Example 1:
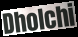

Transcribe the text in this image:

Dholchi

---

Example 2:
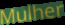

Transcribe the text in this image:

Mulher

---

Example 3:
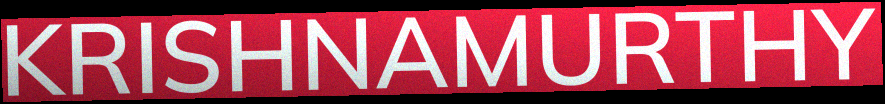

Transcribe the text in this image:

KRISHNAMURTHY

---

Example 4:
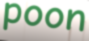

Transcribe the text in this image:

poon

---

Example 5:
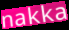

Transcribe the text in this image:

nakka